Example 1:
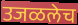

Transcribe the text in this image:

उजळलेच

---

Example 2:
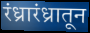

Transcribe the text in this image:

रंध्रारंध्रातून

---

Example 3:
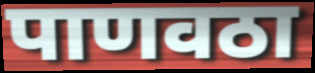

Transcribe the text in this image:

पाणवठा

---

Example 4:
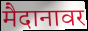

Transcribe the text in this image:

मैदानावर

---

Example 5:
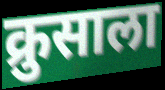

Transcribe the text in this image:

क्रुसाला